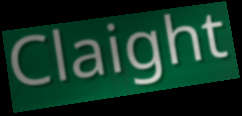
Claight